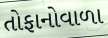
તોફાનોવાળા